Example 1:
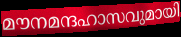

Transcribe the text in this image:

മൗനമന്ദഹാസവുമായി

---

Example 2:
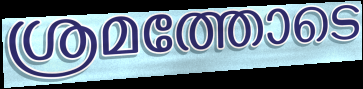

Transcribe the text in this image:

ശ്രമത്തോടെ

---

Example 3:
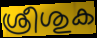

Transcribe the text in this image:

ശ്രീശുക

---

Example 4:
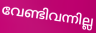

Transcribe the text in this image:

വേണ്ടിവന്നില്ല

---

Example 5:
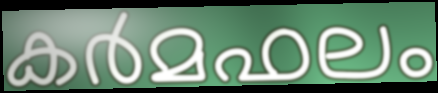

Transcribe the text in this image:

കർമഫലം